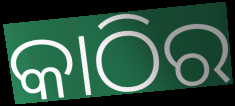
କାଠିର